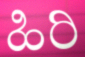
ಹಿರಿ